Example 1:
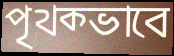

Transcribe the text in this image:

পৃথক্ভাবে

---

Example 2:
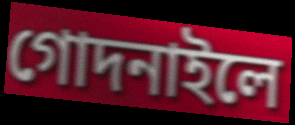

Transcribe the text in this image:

গোদনাইলে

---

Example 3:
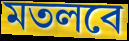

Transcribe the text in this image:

মতলবে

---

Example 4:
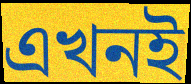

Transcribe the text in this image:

এখনই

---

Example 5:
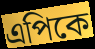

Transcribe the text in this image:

এপিকে